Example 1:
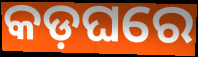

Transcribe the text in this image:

କଡ଼ଘରେ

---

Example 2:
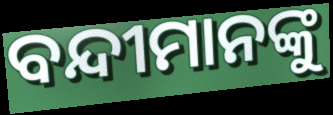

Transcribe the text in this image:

ବନ୍ଦୀମାନଙ୍କୁ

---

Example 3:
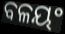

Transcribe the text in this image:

ବଳୟଂ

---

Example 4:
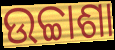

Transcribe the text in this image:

ଉଚ୍ଚାଶା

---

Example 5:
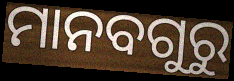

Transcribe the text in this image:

ମାନବଗୁରୁ